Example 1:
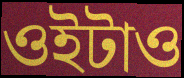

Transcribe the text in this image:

ওইটাও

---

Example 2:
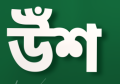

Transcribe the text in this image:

উঁশ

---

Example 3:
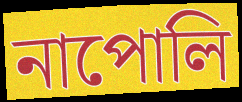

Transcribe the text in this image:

নাপোলি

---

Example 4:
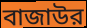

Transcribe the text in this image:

বাজাউর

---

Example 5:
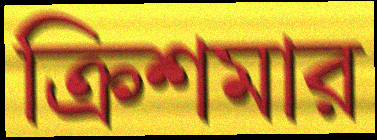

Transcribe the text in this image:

ক্রিশমার